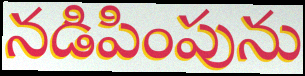
నడిపింపును